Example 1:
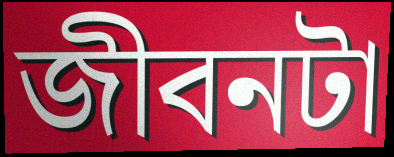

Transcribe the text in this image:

জীবনটা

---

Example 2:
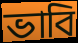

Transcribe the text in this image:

ভাবি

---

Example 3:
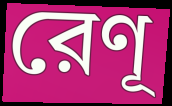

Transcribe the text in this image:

রেণূ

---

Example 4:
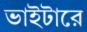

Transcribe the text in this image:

ভাইটারে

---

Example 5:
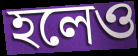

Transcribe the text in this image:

হলেও